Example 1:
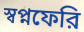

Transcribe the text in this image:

স্বপ্নফেরি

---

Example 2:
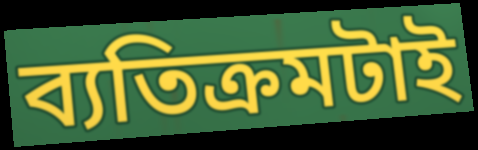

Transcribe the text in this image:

ব্যতিক্রমটাই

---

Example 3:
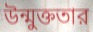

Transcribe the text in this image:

উন্মুক্ততার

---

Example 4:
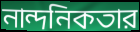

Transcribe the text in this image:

নান্দনিকতার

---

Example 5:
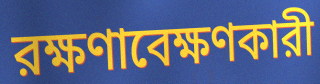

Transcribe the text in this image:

রক্ষণাবেক্ষণকারী